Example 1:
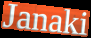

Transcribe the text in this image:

Janaki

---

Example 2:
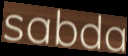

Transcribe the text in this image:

sabda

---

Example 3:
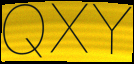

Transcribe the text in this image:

QXY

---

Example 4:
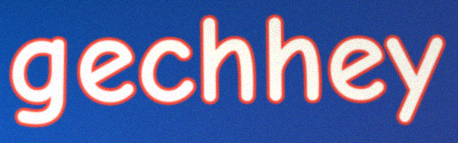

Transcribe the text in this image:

gechhey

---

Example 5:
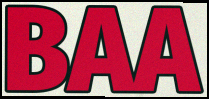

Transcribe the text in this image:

BAA